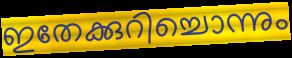
ഇതേക്കുറിച്ചൊന്നും